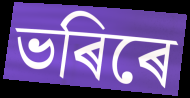
ভৰিৰে